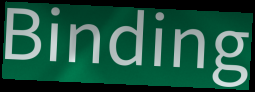
Binding